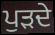
ਪੁੜਦੇ